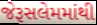
જેરૂસલેમમાંથી